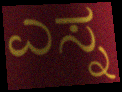
ಎಸ್ನ